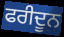
ਫਰੀਦੂਨ